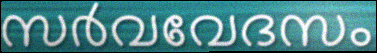
സർവവേദസം